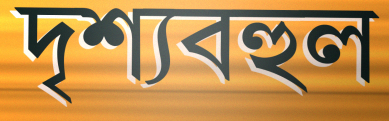
দৃশ্যবহুল